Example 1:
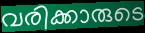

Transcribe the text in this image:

വരിക്കാരുടെ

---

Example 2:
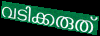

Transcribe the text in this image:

വടിക്കരുത്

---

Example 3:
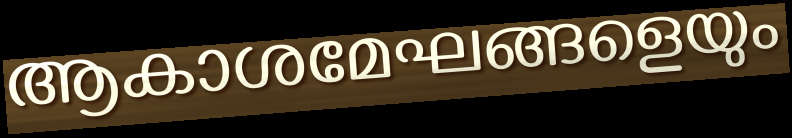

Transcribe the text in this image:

ആകാശമേഘങ്ങളെയും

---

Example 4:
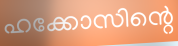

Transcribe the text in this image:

ഹക്കോസിന്റെ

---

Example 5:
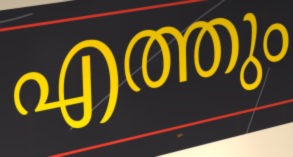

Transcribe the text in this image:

എത്തും